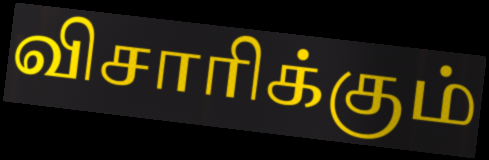
விசாரிக்கும்